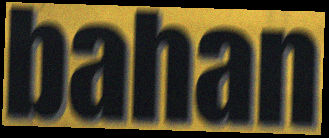
bahan